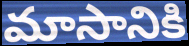
మాసానికి